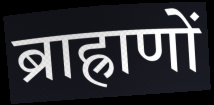
ब्राह्राणों